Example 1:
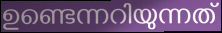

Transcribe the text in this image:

ഉണ്ടെന്നറിയുന്നത്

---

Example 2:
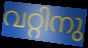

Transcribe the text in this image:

വറ്റിനു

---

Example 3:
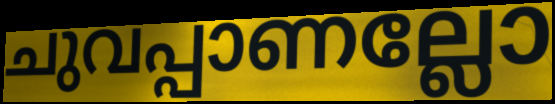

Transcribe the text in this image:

ചുവപ്പാണല്ലോ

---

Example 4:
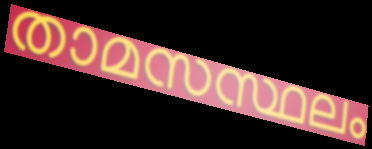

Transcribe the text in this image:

താമസസ്ഥലം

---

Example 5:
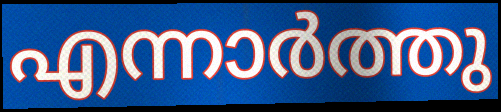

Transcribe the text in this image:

എന്നാർത്തു